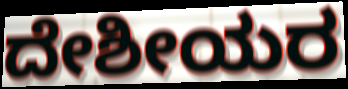
ದೇಶೀಯರ